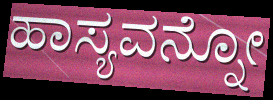
ಹಾಸ್ಯವನ್ನೋ